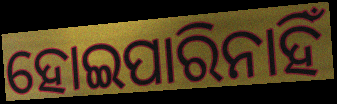
ହୋଇପାରିନାହିଁ